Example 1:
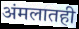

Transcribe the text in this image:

अंमलातही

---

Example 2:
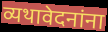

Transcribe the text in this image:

व्यथावेदनांना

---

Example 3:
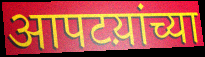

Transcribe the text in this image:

आपटय़ांच्या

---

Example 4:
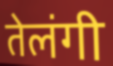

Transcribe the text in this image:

तेलंगी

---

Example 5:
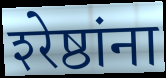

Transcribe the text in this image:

श्रेष्ठांना